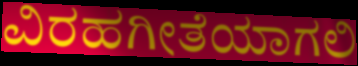
ವಿರಹಗೀತೆಯಾಗಲಿ